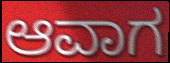
ಆವಾಗ